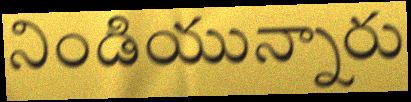
నిండియున్నారు